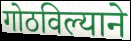
गोठविल्याने